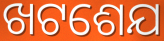
ଖଟଶେଯ